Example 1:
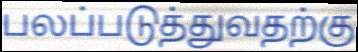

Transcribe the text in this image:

பலப்படுத்துவதற்கு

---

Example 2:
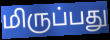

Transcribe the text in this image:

மிருப்பது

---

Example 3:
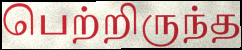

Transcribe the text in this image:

பெற்றிருந்த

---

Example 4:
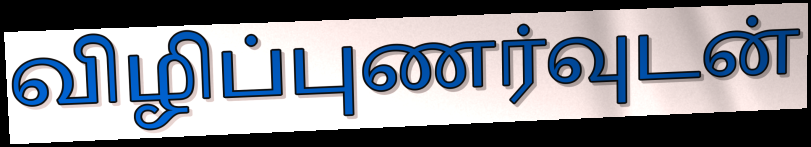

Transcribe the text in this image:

விழிப்புணர்வுடன்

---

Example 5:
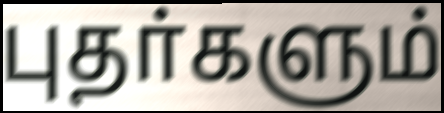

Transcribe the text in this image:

புதர்களும்